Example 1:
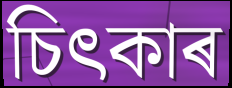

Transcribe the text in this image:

চিৎকাৰ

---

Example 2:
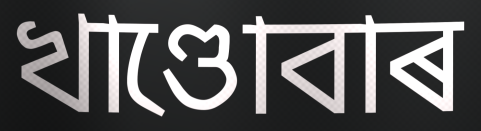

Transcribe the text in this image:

খাণ্ডোবাৰ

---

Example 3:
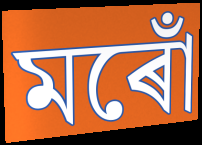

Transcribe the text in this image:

মৰোঁ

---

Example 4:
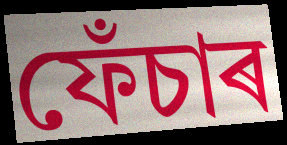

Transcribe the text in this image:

ফেঁচাৰ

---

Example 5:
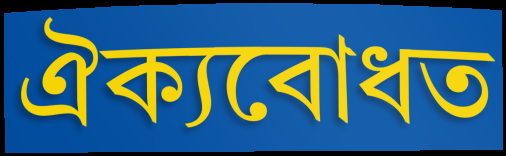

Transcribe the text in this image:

ঐক্যবোধত